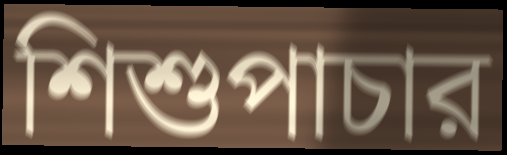
শিশুপাচার